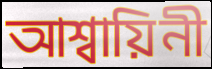
আশ্বায়িনী